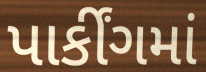
પાર્કીંગમાં